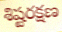
శిష్టరక్షణ